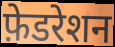
फ़ेडरेशन